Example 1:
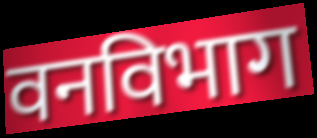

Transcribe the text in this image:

वनविभाग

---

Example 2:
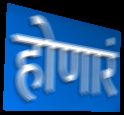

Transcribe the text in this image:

होणारं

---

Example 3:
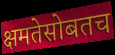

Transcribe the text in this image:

क्षमतेसोबतच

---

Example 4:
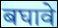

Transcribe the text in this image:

बघावे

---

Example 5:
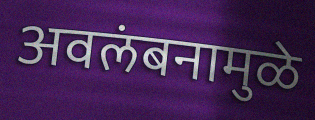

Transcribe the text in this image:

अवलंबनामुळे